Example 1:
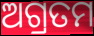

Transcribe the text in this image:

ଅଗ୍ରତମ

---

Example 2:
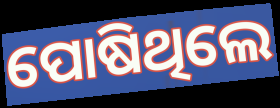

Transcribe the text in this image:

ପୋଷିଥିଲେ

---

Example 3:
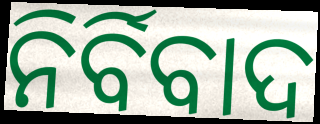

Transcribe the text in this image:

ନିର୍ବିବାଦ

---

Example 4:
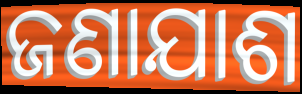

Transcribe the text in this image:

ଜଣାଯାଶ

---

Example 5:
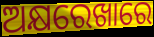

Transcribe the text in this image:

ଅକ୍ଷରେଖାରେ